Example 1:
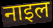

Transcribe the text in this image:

नाइल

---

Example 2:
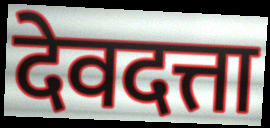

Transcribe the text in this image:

देवदत्ता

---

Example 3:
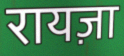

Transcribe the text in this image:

रायज़ा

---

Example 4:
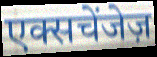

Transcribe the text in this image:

एक्सचेंजेज़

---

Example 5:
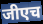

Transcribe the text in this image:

जीएच